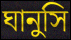
ঘানুসি